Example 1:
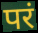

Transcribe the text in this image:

परं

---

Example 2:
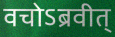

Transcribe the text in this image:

वचोऽब्रवीत्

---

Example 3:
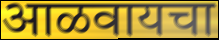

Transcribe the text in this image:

आळवायचा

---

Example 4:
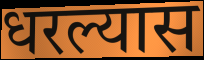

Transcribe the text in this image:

धरल्यास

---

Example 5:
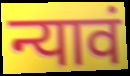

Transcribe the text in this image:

न्यावं